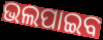
ଭଲପାଇବ